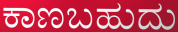
ಕಾಣಬಹುದು